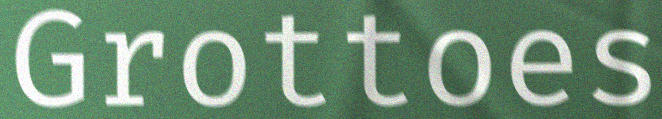
Grottoes